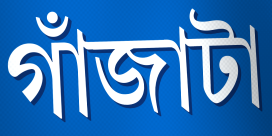
গাঁজাটা